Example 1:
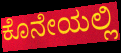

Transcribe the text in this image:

ಕೊನೇಯಲ್ಲಿ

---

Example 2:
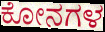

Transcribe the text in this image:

ಕೋನಗಳ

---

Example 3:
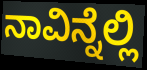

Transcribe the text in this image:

ನಾವಿನ್ನೆಲ್ಲಿ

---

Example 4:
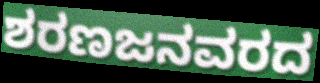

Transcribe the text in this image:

ಶರಣಜನವರದ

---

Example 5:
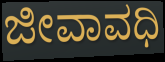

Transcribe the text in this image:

ಜೀವಾವಧಿ